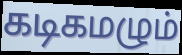
கடிகமழும்